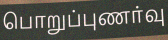
பொறுப்புணர்வு